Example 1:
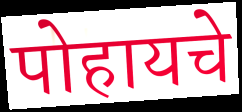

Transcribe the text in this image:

पोहायचे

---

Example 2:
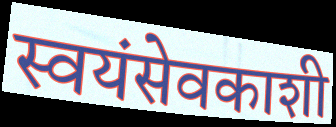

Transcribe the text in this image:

स्वयंसेवकाशी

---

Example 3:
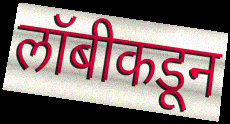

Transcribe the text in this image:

लॉबीकडून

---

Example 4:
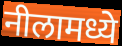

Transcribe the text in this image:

नीलामध्ये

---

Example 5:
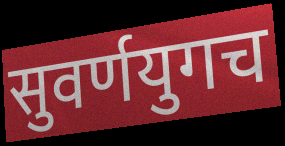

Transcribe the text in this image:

सुवर्णयुगच